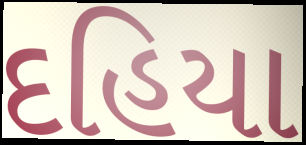
દહિયા